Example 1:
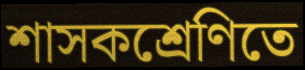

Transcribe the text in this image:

শাসকশ্রেণিতে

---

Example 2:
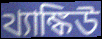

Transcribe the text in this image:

থ্যাঙ্কিউ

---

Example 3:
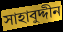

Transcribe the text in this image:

সাহাবুদ্দীন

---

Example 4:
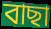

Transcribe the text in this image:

বাছা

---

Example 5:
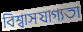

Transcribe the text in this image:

বিশ্বাসযাগ্যতা